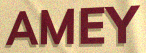
AMEY